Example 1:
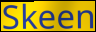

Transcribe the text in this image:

Skeen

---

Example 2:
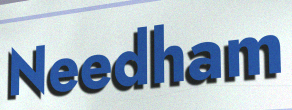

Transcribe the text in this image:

Needham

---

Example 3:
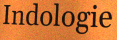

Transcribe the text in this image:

Indologie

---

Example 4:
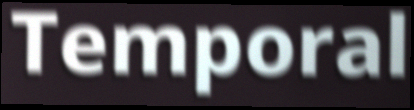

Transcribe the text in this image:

Temporal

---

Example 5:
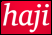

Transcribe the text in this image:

haji